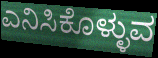
ಎನಿಸಿಕೊಳ್ಳುವ